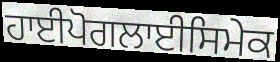
ਹਾਈਪੋਗਲਾਈਸਿਮੇਕ